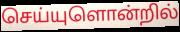
செய்யுளொன்றில்